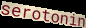
serotonin